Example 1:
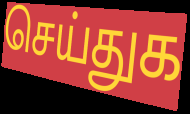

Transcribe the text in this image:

செய்துக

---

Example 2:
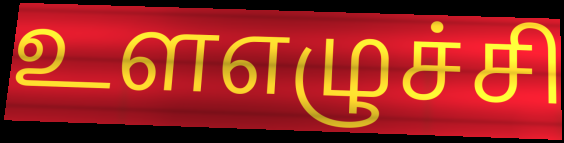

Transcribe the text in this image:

உளஎழுச்சி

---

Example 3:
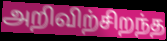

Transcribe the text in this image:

அறிவிற்சிறந்த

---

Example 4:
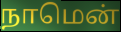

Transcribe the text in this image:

நாமென்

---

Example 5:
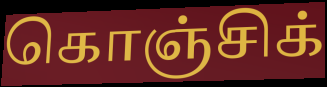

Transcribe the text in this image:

கொஞ்சிக்